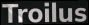
Troilus